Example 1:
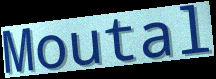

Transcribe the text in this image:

Moutal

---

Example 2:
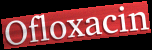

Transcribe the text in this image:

Ofloxacin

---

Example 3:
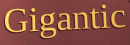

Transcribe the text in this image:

Gigantic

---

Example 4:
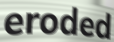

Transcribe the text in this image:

eroded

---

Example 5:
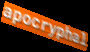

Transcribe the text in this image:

apocryphal